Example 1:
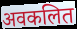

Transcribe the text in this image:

अवकलित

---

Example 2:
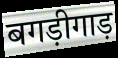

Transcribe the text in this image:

बगड़ीगाड़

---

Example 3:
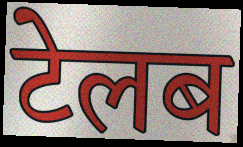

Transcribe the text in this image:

टेलब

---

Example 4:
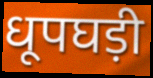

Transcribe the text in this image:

धूपघड़ी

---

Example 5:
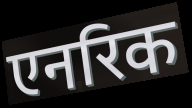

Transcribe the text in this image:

एनरिक